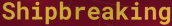
Shipbreaking